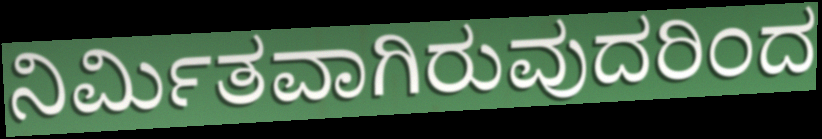
ನಿರ್ಮಿತವಾಗಿರುವುದರಿಂದ